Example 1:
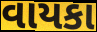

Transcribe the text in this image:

વાયકા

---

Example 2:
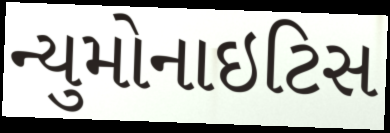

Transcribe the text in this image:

ન્યુમોનાઇટિસ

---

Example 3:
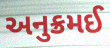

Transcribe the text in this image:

અનુક્રમઈ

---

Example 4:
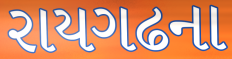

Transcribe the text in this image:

રાયગઢના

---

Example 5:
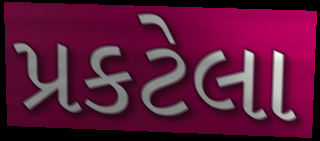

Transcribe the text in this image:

પ્રકટેલા